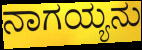
ನಾಗಯ್ಯನು